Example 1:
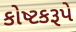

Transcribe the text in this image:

કોષ્ટકરૂપે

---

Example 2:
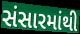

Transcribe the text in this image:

સંસારમાંથી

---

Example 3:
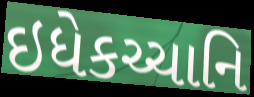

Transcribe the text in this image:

ઇધેકચ્ચાનિ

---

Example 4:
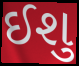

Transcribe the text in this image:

ઈશુ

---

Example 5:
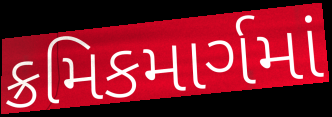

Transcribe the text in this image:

ક્રમિકમાર્ગમાં